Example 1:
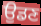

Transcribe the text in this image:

ਉਡਣ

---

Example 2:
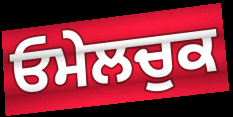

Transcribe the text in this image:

ਓਮੇਲਚੁਕ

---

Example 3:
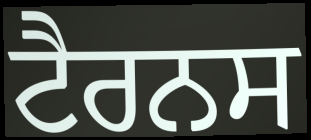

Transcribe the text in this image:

ਟੈਰਨਸ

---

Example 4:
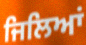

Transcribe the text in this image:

ਜਿਲਿਆਂ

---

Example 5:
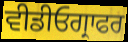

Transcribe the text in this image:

ਵੀਡੀਓਗ੍ਰਾਫਰ